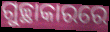
ଗୁଚ୍ଛାକାରରେ